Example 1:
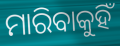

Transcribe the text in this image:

ମାରିବାକୁହିଁ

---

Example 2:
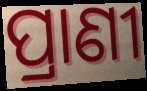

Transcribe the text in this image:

ପ୍ରାଣୀ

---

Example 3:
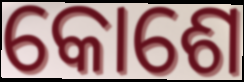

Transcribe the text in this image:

କୋଶେ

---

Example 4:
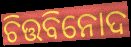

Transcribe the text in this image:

ଚିତ୍ତବିନୋଦ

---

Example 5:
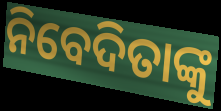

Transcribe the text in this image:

ନିବେଦିତାଙ୍କୁ